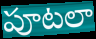
పూటలా